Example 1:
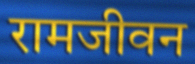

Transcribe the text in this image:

रामजीवन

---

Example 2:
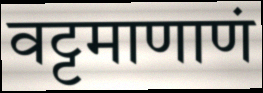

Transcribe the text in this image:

वट्टमाणाणं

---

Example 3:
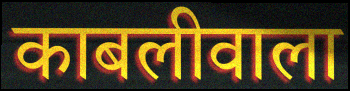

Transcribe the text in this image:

काबलीवाला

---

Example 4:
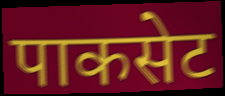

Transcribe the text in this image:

पाकसेट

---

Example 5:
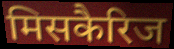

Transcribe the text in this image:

मिसकैरिज